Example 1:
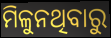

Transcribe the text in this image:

ମିଳୁନଥିବାରୁ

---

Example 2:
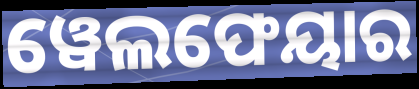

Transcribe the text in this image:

ୱେଲଫେୟାର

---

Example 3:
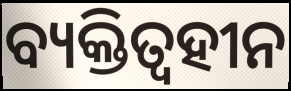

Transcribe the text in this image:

ବ୍ୟକ୍ତିତ୍ୱହୀନ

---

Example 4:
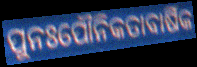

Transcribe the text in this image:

ପୁନଃପୌନିକତାବାର୍ଷିକ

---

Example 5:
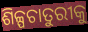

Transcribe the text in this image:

ଶିଳ୍ପଚାତୁରୀକୁ